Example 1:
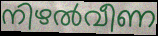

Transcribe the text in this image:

നിഴൽവീണ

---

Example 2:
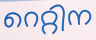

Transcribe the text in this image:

റെറ്റിന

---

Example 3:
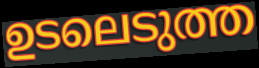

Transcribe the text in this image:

ഉടലെടുത്ത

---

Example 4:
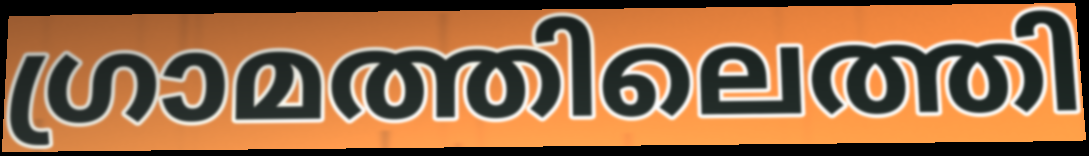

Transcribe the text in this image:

ഗ്രാമത്തിലെത്തി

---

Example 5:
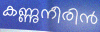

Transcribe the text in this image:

കണ്ണുനീരിൻ